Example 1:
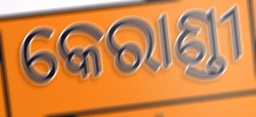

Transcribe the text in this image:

କେରାଣ୍ଡୀ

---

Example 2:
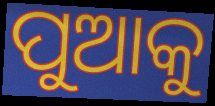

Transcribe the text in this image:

ପୁଆକୁ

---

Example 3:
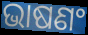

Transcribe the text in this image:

ଭାଷଣଂ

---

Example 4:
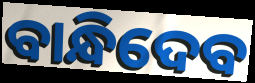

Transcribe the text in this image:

ବାନ୍ଧିଦେବ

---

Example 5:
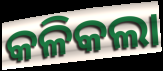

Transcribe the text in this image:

କଳିକଲା